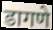
डागणे